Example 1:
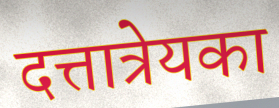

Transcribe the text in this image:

दत्तात्रेयका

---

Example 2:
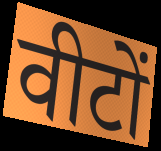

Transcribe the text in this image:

वीटों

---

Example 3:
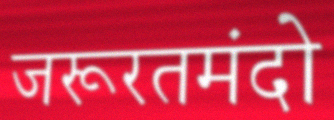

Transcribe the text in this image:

जरूरतमंदो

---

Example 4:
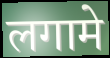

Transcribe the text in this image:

लगामे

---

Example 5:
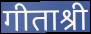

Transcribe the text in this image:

गीताश्री